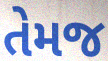
તેમજ